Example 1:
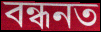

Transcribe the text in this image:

বন্ধনত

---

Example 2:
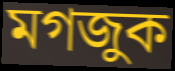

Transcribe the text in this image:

মগজুক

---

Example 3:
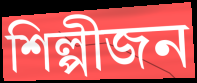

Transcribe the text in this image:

শিল্পীজন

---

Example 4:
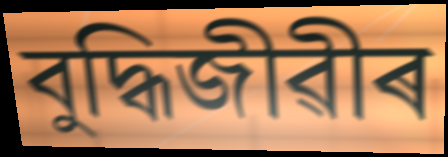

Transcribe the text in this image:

বুদ্ধিজীৱীৰ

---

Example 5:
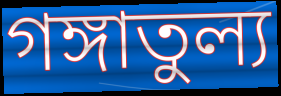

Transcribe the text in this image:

গঙ্গাতুল্য